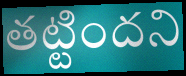
తట్టిందని